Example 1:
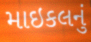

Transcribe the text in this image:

માઇકલનું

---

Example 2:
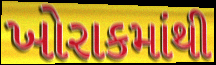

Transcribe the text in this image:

ખોરાકમાંથી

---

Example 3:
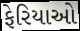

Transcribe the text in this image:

ફેરિયાઓ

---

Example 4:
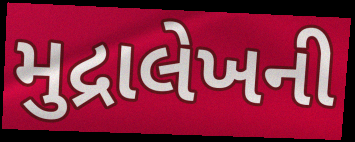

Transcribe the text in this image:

મુદ્રાલેખની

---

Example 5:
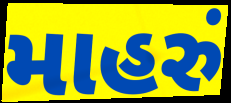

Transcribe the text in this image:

માહરું